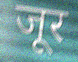
जूर